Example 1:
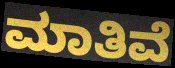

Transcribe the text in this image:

ಮಾತಿವೆ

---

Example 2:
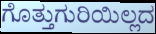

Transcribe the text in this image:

ಗೊತ್ತುಗುರಿಯಿಲ್ಲದ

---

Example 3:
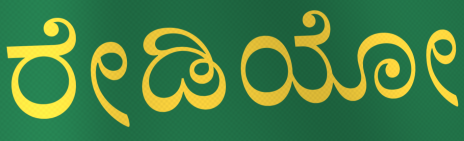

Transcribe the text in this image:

ರೇಡಿಯೋ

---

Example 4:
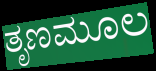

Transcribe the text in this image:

ತೃಣಮೂಲ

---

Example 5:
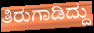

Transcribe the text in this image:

ತಿರುಗಾಡಿದ್ದು